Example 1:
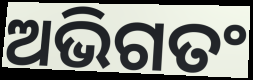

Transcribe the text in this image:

ଅଭିଗତଂ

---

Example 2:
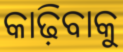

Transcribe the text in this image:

କାଢ଼ିବାକୁ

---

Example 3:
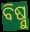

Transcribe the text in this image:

ବିଷ୍ନୁ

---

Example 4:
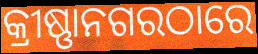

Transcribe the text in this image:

କ୍ରୀଷ୍ଣାନଗରଠାରେ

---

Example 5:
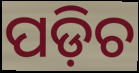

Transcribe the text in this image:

ପଡ଼ିଚ